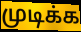
முடிக்க